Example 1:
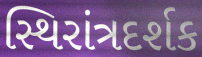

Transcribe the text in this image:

સ્થિરાંત્રદર્શક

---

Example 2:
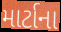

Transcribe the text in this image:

માર્ટાના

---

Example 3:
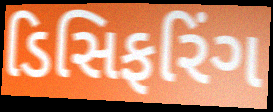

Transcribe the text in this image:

ડિસિફરિંગ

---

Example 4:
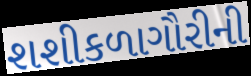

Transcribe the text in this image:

શશીકળાગૌરીની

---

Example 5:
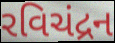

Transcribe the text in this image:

રવિચંદ્રન